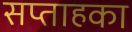
सप्ताहका